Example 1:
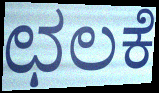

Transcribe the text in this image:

ಛಲಕೆ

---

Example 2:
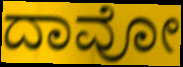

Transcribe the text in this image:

ದಾವೋ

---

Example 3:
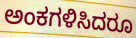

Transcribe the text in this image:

ಅಂಕಗಳಿಸಿದರೂ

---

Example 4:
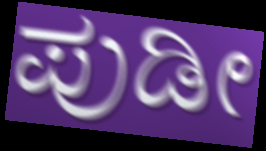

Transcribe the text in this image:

ಪುಡೀ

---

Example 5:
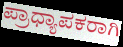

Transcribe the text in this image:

ಪ್ರಾಧ್ಯಾಪಕರಾಗಿ